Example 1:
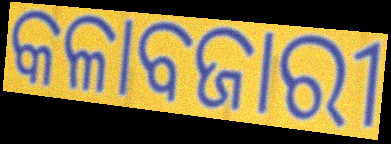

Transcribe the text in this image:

କଳାବଜାରୀ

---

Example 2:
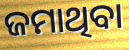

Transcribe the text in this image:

ଜମାଥିବା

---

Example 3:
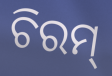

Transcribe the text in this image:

ଚିରମ୍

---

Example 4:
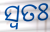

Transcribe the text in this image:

ସ୍ଵତଃ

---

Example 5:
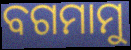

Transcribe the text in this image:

ବଗମାମୁ